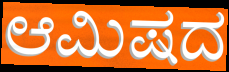
ಆಮಿಷದ